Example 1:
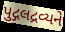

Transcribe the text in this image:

પુદ્ગલદ્રવ્યને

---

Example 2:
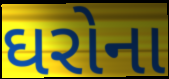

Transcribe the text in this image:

ઘરોના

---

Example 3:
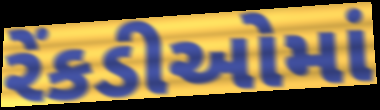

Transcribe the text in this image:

રેંકડીઓમાં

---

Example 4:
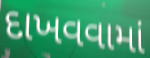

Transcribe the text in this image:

દાખવવામાં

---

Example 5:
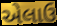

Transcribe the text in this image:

એલાઉ